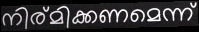
നിര്മിക്കണമെന്ന്